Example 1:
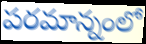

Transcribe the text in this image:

పరమాన్నంలో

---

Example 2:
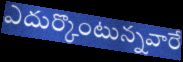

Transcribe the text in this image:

ఎదుర్కొంటున్నవారే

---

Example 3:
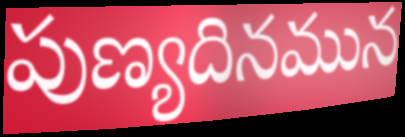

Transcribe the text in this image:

పుణ్యదినమున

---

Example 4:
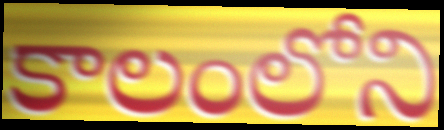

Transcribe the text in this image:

కాలంలోని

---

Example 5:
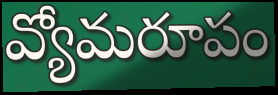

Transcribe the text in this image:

వ్యోమరూపం